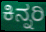
ಕಿನ್ನರಿ